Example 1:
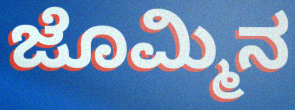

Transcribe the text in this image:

ಜೊಮ್ಮಿನ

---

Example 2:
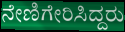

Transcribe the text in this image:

ನೇಣಿಗೇರಿಸಿದ್ದರು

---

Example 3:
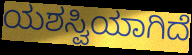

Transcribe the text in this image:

ಯಶಸ್ವಿಯಾಗಿದೆ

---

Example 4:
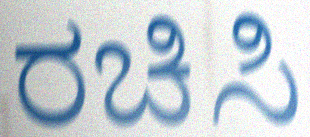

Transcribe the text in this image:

ರಚಿಸಿ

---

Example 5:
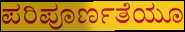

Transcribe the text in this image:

ಪರಿಪೂರ್ಣತೆಯೂ